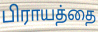
பிராயத்தை